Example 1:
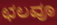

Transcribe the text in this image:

ಛಲವೂ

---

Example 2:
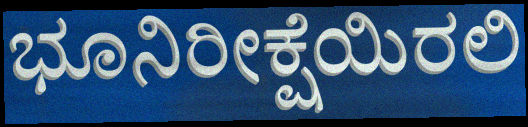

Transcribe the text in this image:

ಭೂನಿರೀಕ್ಷೆಯಿರಲಿ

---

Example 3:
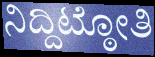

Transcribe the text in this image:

ನಿದ್ದಿಟ್ಠೋತಿ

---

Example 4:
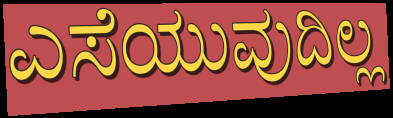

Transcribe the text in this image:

ಎಸೆಯುವುದಿಲ್ಲ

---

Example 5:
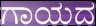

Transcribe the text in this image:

ಗಾಯದ